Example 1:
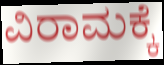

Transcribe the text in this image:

ವಿರಾಮಕ್ಕೆ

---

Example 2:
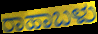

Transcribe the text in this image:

ರಾಹಾಬಳು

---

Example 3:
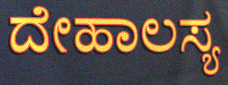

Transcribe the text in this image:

ದೇಹಾಲಸ್ಯ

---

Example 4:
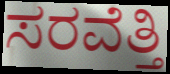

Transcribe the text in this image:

ಸರವೆತ್ತಿ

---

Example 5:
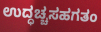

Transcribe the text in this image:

ಉದ್ಧಚ್ಚಸಹಗತಂ